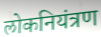
लोकनियंत्रण